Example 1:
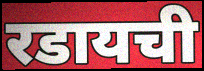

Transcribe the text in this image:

रडायची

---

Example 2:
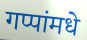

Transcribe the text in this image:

गप्पांमधे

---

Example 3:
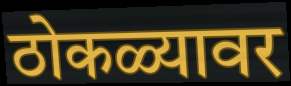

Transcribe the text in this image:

ठोकळ्यावर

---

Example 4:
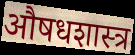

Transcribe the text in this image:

औषधशास्त्र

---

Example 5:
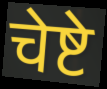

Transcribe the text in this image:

चेष्टे